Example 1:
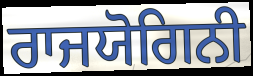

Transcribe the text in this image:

ਰਾਜਯੋਗਿਨੀ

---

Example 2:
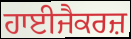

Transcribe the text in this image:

ਹਾਈਜੈਕਰਜ਼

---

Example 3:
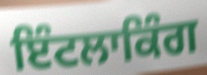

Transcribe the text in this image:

ਇੰਟਲਾਕਿੰਗ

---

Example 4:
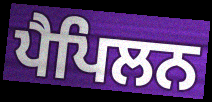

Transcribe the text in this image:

ਪੈਪਿਲਨ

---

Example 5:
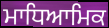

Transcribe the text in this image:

ਮਾਧਿਆਮਿਕ